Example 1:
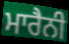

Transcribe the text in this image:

ਮਾਰੈਨੀ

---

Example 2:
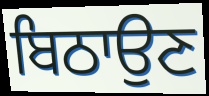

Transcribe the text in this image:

ਬਿਠਾਉਣ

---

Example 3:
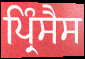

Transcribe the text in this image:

ਪ੍ਰਿੰਸੈਸ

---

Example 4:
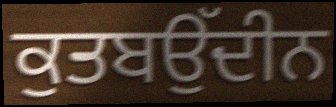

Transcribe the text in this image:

ਕੁਤਬਉੱਦੀਨ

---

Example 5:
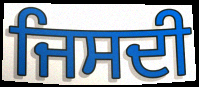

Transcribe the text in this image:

ਜਿਸਦੀ